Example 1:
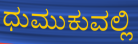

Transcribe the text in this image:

ಧುಮುಕುವಲ್ಲಿ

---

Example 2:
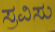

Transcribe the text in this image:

ಸ್ರವಿಸು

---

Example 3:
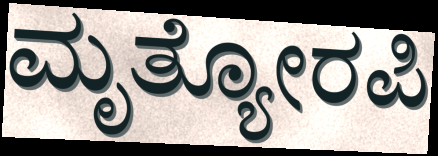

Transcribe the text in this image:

ಮೃತ್ಯೋರಪಿ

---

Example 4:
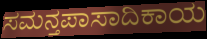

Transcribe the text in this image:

ಸಮನ್ತಪಾಸಾದಿಕಾಯ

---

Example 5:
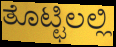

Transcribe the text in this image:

ತೊಟ್ಟಿಲಲ್ಲಿ